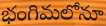
భంగిమలోనూ